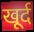
खूर्द